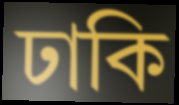
ঢাকি